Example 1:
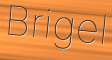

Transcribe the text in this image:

Brigel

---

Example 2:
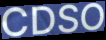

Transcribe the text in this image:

CDSO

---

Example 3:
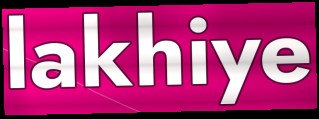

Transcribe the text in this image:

lakhiye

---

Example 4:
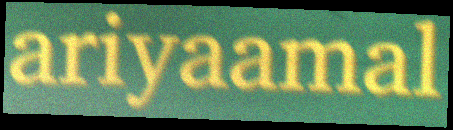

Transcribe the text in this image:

ariyaamal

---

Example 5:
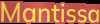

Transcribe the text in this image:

Mantissa